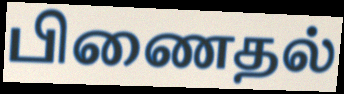
பிணைதல்